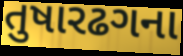
તુષારઢગના